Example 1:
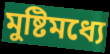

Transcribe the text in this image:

মুষ্টিমধ্যে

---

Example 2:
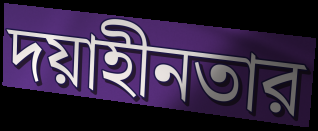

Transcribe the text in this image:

দয়াহীনতার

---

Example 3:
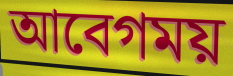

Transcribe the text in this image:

আবেগময়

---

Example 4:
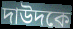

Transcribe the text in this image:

দাউদকে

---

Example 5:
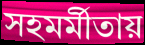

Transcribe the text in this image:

সহমর্মীতায়